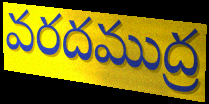
వరదముద్ర